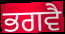
ਭਗਵੈ